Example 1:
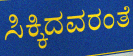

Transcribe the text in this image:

ಸಿಕ್ಕಿದವರಂತೆ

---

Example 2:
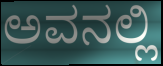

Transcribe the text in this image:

ಅವನಲ್ಲಿ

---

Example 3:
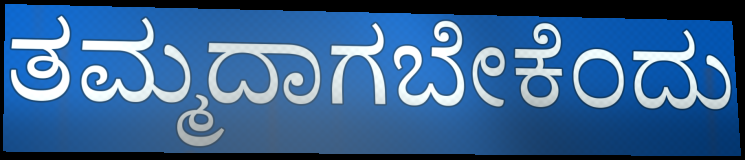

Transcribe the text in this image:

ತಮ್ಮದಾಗಬೇಕೆಂದು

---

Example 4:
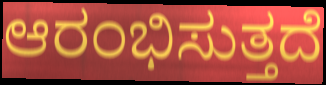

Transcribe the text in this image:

ಆರಂಭಿಸುತ್ತದೆ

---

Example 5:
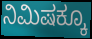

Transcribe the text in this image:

ನಿಮಿಷಕ್ಕೂ